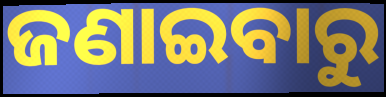
ଜଣାଇବାରୁ